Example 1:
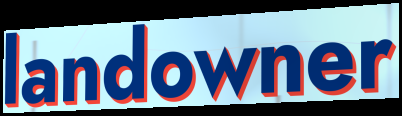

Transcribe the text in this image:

landowner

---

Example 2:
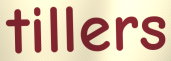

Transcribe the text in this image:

tillers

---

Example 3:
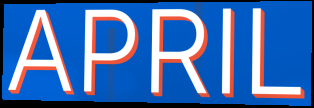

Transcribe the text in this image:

APRIL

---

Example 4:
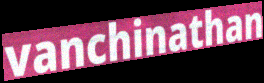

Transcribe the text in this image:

vanchinathan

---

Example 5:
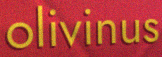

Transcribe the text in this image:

olivinus